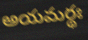
అయమర్థః